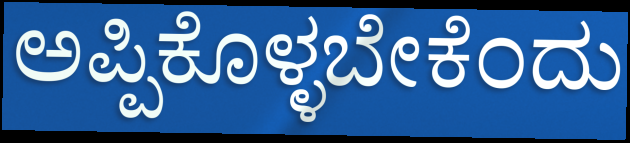
ಅಪ್ಪಿಕೊಳ್ಳಬೇಕೆಂದು